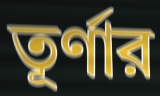
তূর্ণার